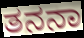
ತನನಾ